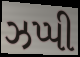
ઝપ્પી